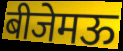
बीजेमऊ